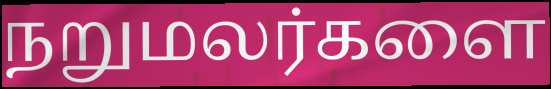
நறுமலர்களை